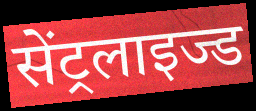
सेंट्रलाइज्ड